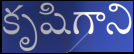
కృషిగాని